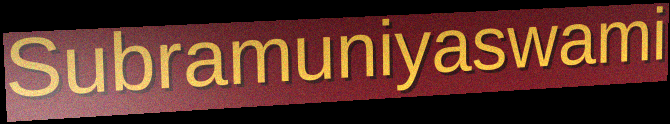
Subramuniyaswami